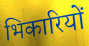
भिकारियों